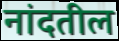
नांदतील